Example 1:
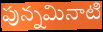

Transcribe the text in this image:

పున్నమినాటి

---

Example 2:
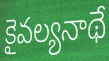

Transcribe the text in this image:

కైవల్యనాథే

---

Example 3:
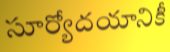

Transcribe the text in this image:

సూర్యోదయానికీ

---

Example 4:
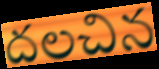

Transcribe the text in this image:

దలచిన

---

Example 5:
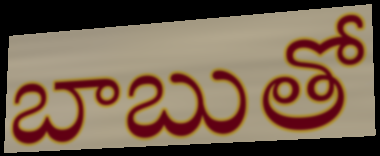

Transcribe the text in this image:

బాబుతో